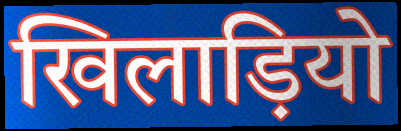
खिलाड़ियो